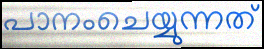
പാനംചെയ്യുന്നത്